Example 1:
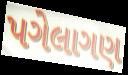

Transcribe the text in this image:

પગેલાગણ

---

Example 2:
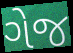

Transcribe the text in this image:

ગેજ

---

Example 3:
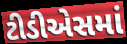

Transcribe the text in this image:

ટીડીએસમાં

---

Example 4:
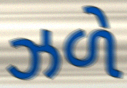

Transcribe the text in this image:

ઝળે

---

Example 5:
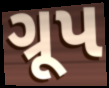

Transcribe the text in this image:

ગ્રૂપ